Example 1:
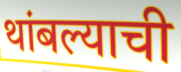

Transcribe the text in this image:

थांबल्याची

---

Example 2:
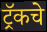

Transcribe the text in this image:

ट्रॅकचे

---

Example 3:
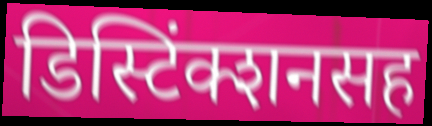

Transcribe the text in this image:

डिस्टिंक्शनसह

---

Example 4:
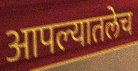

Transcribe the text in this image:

आपल्यातलेच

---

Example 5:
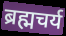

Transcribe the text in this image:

ब्रह्मचर्य